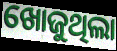
ଖୋଜୁଥିଲା